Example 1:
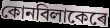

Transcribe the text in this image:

কোনবিলাকেৰে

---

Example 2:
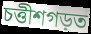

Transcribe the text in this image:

চত্তীশগড়ত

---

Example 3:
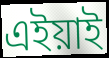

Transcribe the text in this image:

এইয়াই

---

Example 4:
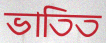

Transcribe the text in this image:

ভাতিত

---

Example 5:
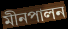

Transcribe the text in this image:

মীনপালন